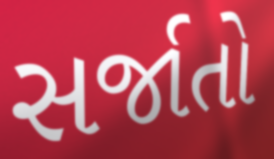
સર્જાતો